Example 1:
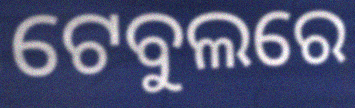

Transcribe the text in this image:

ଟେବୁଲରେ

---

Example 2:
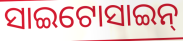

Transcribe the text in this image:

ସାଇଟୋସାଇନ୍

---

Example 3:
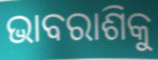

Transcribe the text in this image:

ଭାବରାଶିକୁ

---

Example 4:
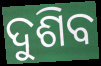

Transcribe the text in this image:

ଦୁଶିବ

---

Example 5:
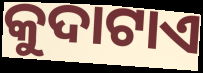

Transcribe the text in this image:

କୁଦାଟାଏ